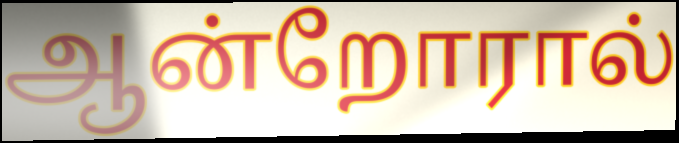
ஆன்றோரால்